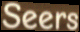
Seers